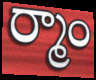
ర్మాం